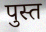
पुस्त